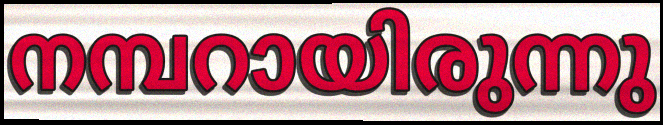
നമ്പറായിരുന്നു